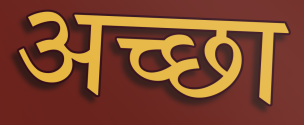
अच्छा